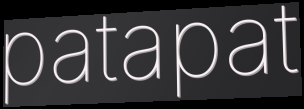
patapat